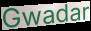
Gwadar